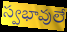
స్వభావులే